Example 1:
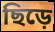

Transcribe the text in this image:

ছিড়ে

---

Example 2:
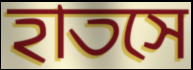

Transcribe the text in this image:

হাতসে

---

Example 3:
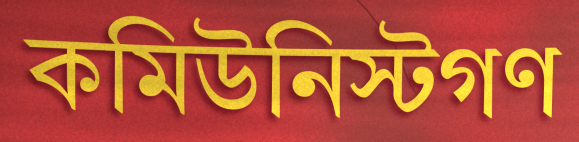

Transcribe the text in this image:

কমিউনিস্টগণ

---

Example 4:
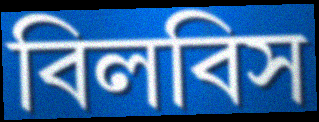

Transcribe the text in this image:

বিলবিস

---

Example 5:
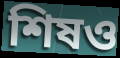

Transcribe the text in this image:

শিষও